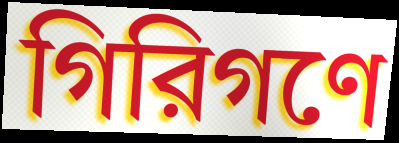
গিরিগণে